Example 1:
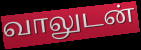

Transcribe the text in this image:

வாலுடன்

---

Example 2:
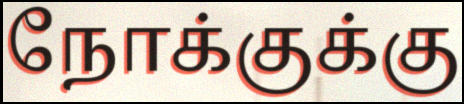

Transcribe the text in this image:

நோக்குக்கு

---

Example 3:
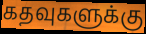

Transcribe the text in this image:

கதவுகளுக்கு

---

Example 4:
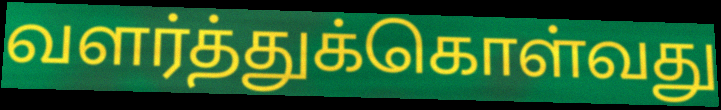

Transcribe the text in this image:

வளர்த்துக்கொள்வது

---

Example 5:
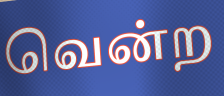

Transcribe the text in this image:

வென்ற